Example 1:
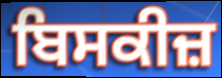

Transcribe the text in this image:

ਬਿਸਕੀਜ਼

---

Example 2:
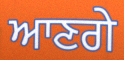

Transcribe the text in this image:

ਆਣਗੇ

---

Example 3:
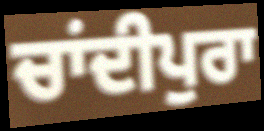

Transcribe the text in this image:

ਚਾਂਦੀਪੁਰਾ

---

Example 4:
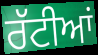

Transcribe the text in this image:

ਰੱਟੀਆਂ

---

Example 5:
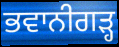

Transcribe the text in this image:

ਭਵਾਨੀਗੜ੍ਹ